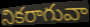
నికరాగువా